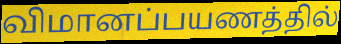
விமானப்பயணத்தில்